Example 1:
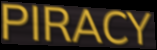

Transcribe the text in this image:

PIRACY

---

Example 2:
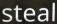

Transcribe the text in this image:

steal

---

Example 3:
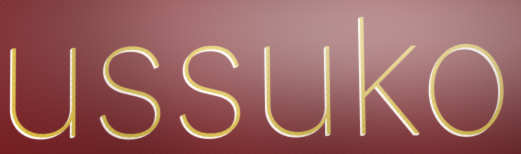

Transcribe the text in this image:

ussuko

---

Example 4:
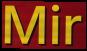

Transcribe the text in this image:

Mir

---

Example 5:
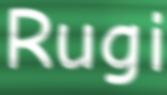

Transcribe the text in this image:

Rugi